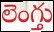
లెంగ్తు